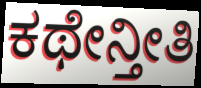
ಕಥೇನ್ತೀತಿ